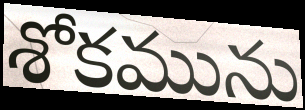
శోకమును